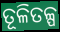
ତୂଳିତଳ୍ପ